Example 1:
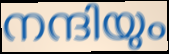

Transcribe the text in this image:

നന്ദിയും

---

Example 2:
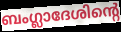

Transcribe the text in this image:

ബംഗ്ലാദേശിന്റെ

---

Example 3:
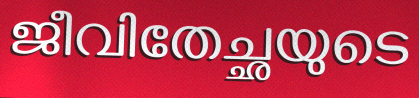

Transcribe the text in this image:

ജീവിതേച്ഛയുടെ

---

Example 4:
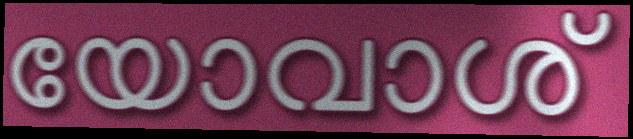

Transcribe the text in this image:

യോവാശ്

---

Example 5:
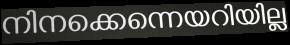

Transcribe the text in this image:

നിനക്കെന്നെയറിയില്ല